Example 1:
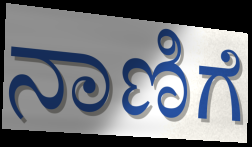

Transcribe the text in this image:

ನಾಣಿಗೆ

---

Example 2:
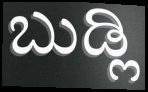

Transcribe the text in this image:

ಬುಡ್ಲಿ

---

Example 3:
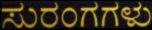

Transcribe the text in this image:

ಸುರಂಗಗಳು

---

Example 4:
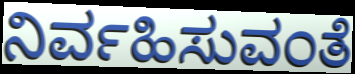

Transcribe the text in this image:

ನಿರ್ವಹಿಸುವಂತೆ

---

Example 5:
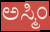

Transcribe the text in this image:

ಅಸ್ಮಿಂ